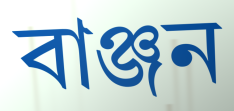
বাঞ্জন